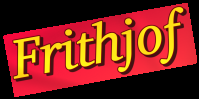
Frithjof